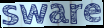
sware